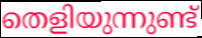
തെളിയുന്നുണ്ട്